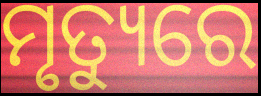
ମୃତ୍ୟୁରେ